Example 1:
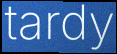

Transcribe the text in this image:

tardy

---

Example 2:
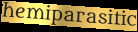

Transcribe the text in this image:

hemiparasitic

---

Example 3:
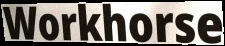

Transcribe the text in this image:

Workhorse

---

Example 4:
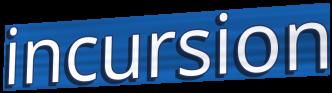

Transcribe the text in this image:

incursion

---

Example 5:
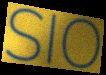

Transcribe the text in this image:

SIO